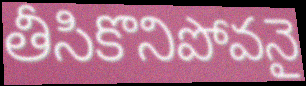
తీసికొనిపోవనై